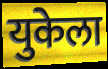
युकेला